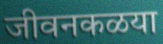
जीवनकळया